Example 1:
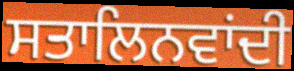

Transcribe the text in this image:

ਸਤਾਲਿਨਵਾਂਦੀ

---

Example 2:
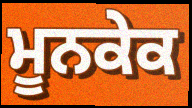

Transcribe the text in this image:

ਮੂਨਕੇਕ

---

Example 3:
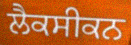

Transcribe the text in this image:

ਲੈਕਸੀਕਨ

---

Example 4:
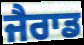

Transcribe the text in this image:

ਜੈਰਾਡ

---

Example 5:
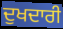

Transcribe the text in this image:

ਦੁਖਦਾਰੀ